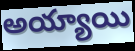
అయ్యాయి